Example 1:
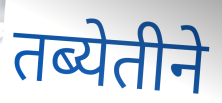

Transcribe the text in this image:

तब्येतीने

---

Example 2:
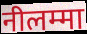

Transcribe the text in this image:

नीलम्मा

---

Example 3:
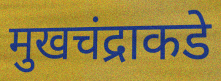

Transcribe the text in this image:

मुखचंद्राकडे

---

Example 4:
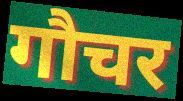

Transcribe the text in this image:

गौचर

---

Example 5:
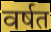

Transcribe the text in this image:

वर्षत